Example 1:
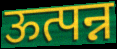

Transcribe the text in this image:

ऊत्पन्न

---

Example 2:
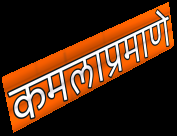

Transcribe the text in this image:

कमलाप्रमाणे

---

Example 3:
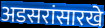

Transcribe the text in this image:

अडसरांसारखे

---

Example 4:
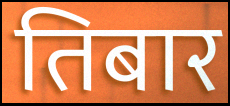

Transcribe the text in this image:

तिबार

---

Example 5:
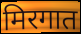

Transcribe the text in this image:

मिरगात